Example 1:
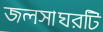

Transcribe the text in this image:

জলসাঘরটি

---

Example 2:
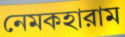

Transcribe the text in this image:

নেমকহারাম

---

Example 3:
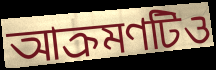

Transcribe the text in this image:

আক্রমণটিও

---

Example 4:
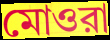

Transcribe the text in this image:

মোওরা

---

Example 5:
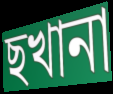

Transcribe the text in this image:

ছখানা